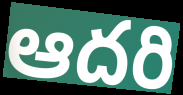
ఆదరి